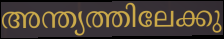
അന്ത്യത്തിലേക്കു